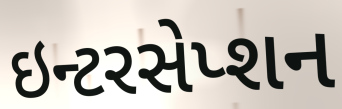
ઇન્ટરસેપ્શન